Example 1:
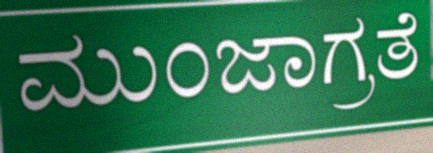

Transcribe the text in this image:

ಮುಂಜಾಗ್ರತೆ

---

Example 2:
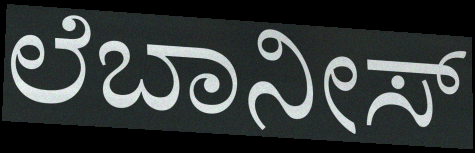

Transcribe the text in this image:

ಲೆಬಾನೀಸ್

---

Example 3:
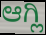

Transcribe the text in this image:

ಆಗ್ಲಿ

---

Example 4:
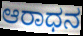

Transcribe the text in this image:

ಆರಾಧನ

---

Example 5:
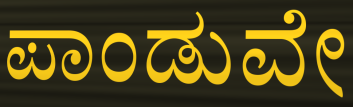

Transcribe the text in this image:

ಪಾಂಡುವೇ